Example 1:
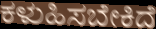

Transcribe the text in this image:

ಕಳುಹಿಸಬೇಕಿದೆ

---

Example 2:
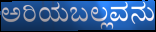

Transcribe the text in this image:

ಅರಿಯಬಲ್ಲವನು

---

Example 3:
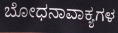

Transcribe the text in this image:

ಬೋಧನಾವಾಕ್ಯಗಳ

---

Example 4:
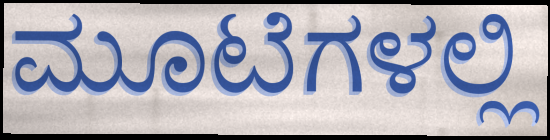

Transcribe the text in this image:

ಮೂಟೆಗಳಲ್ಲಿ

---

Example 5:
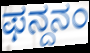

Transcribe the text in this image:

ಫನ್ದನಂ